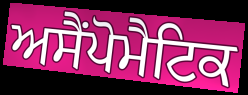
ਅਸੈਂਪੋਮੈਟਿਕ